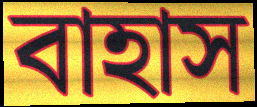
বাহাস